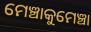
ମେଞ୍ଚାକୁମେଞ୍ଚା